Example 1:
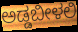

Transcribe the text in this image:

ಅಡ್ಡಬೀಳಲಿ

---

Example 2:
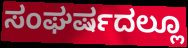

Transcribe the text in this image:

ಸಂಘರ್ಷದಲ್ಲೂ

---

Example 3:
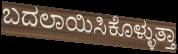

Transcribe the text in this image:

ಬದಲಾಯಿಸಿಕೊಳ್ಳುತ್ತಾ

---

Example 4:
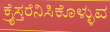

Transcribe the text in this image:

ಕ್ರೈಸ್ತರೆನಿಸಿಕೊಳ್ಳುವ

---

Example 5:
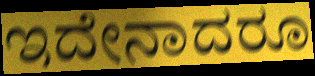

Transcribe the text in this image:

ಇದೇನಾದರೂ